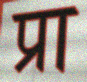
प्रा